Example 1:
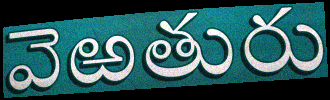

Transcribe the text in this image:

వెఱతురు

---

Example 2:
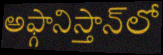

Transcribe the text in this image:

అఫ్గానిస్తాన్‌లో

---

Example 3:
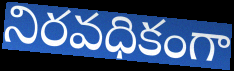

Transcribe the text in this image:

నిరవధికంగా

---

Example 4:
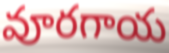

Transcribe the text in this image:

వూరగాయ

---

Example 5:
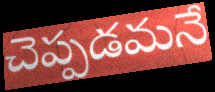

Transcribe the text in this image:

చెప్పడమనే